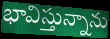
భావిస్తున్నాను